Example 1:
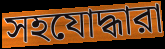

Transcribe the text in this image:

সহযোদ্ধারা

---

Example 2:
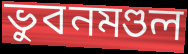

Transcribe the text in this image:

ভুবনমণ্ডল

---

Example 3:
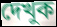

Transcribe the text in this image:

দেখুক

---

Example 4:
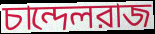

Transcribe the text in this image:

চান্দেলরাজ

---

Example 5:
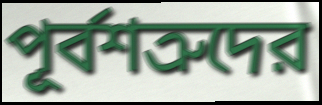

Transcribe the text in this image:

পূর্বশত্রুদের